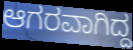
ಆಗರವಾಗಿದ್ದ